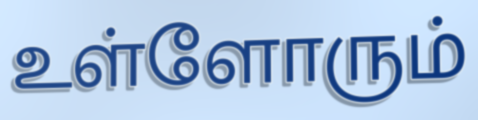
உள்ளோரும்